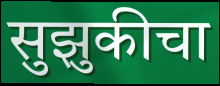
सुझुकीचा